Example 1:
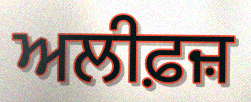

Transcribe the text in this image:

ਅਲੀਫ਼ਜ਼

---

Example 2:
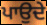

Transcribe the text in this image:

ਪਾਉਦੇ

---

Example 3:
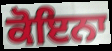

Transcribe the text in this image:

ਕੋਇਨਾ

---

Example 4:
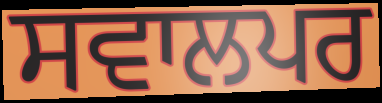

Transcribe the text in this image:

ਸਵਾਲਪਰ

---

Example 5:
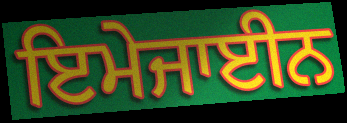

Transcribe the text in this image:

ਇਮੇਜਾਈਨ